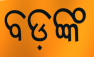
ବଡ଼ଙ୍କ